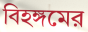
বিহঙ্গমের